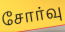
சோர்வு